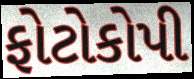
ફોટોકોપી